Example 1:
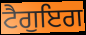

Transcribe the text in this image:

ਟੈਗੁਇਗ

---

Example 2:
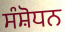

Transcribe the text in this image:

ਸੰਸ਼ੋਧਨ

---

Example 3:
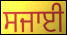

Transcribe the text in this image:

ਸਜਾਈ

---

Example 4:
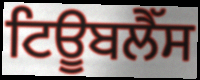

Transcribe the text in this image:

ਟਿਊਬਲੈੱਸ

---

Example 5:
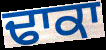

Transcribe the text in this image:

ਢਾਕਾ